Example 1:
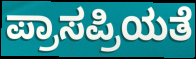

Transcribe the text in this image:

ಪ್ರಾಸಪ್ರಿಯತೆ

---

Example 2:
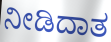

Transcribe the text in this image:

ನೀಡಿದಾತ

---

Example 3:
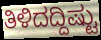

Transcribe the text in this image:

ತಿಳಿದದ್ದಿಷ್ಟು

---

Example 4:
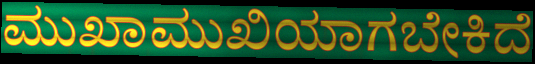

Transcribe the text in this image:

ಮುಖಾಮುಖಿಯಾಗಬೇಕಿದೆ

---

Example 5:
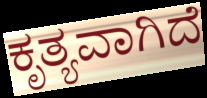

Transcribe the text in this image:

ಕೃತ್ಯವಾಗಿದೆ